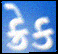
ક્રેક